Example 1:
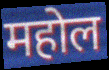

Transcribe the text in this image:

महोल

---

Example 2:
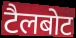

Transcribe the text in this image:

टैलबोट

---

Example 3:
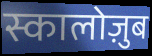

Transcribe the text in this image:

स्कालोज़ुब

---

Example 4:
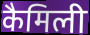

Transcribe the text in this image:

कैमिली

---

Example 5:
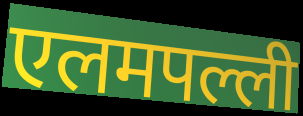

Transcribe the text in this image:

एलमपल्ली